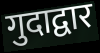
गुदाद्वार